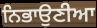
ਨਿਭਾਉਣੀਆ